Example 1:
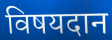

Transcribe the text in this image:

विषयदान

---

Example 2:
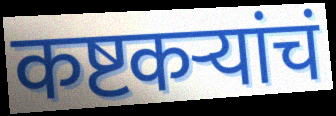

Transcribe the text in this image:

कष्टकऱ्यांचं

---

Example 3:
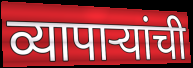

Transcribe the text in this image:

व्यापाऱ्यांची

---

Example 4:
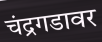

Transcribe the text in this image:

चंद्रगडावर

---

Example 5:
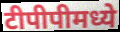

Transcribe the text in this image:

टीपीपीमध्ये